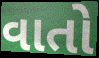
વાતો